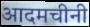
आदमचीनी